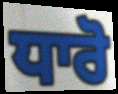
ਧਾਰੋ